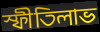
স্ফীতিলাভ